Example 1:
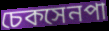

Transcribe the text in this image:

চেকসেনপা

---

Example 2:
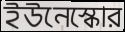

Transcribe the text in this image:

ইউনেস্কোর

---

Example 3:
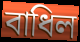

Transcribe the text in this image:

বাধিল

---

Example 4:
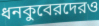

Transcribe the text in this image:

ধনকুবেরদেরও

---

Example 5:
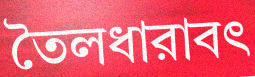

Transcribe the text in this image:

তৈলধারাবৎ